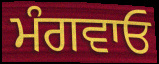
ਮੰਗਵਾਓ